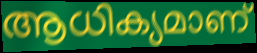
ആധിക്യമാണ്